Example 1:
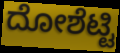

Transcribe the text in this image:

ದೋಶೆಟ್ಟಿ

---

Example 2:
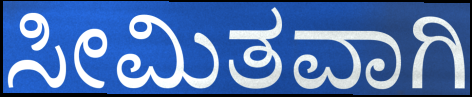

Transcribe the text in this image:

ಸೀಮಿತವಾಗಿ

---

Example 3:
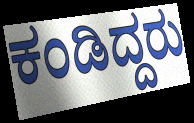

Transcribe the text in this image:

ಕಂಡಿದ್ದರು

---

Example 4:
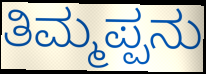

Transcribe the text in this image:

ತಿಮ್ಮಪ್ಪನು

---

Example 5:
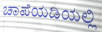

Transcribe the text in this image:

ಚಾಪೆಯಡಿಯಲ್ಲಿ